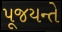
પૂજયન્તે